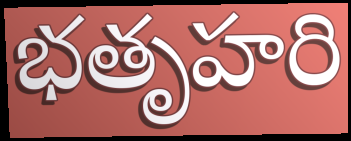
భతృహరి